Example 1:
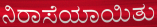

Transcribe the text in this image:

ನಿರಾಸೆಯಾಯಿತು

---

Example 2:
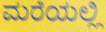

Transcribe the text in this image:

ಮರೆಯಲ್ಲಿ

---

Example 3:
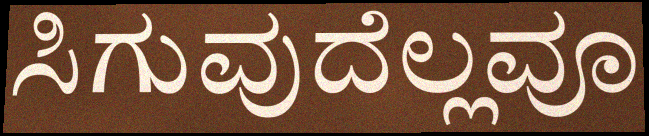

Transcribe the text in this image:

ಸಿಗುವುದೆಲ್ಲವೂ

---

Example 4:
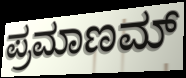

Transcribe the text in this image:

ಪ್ರಮಾಣಮ್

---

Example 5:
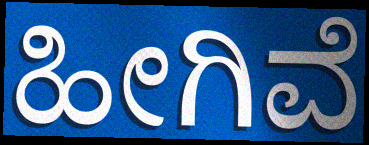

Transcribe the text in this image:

ಹೀಗಿವೆ